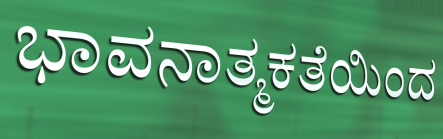
ಭಾವನಾತ್ಮಕತೆಯಿಂದ